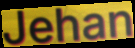
Jehan